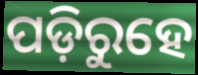
ପଡ଼ିରୁହେ